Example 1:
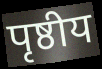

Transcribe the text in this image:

पृष्ठीय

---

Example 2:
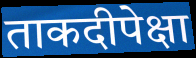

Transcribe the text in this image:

ताकदीपेक्षा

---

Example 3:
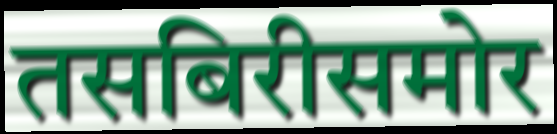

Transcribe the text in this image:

तसबिरीसमोर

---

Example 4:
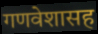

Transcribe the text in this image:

गणवेशासह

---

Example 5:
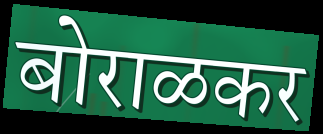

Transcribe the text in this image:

बोराळकर